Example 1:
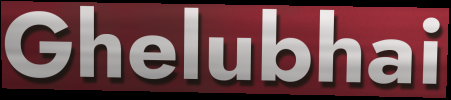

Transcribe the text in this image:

Ghelubhai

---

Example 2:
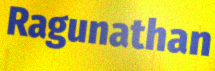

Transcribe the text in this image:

Ragunathan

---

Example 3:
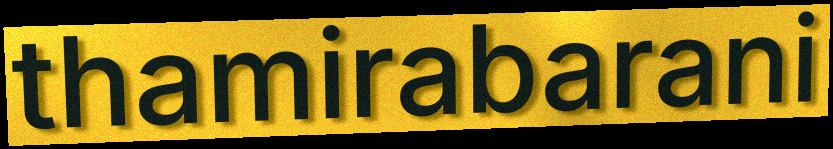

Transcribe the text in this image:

thamirabarani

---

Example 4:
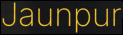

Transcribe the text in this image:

Jaunpur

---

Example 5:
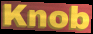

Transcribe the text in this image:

Knob